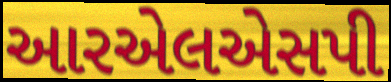
આરએલએસપી